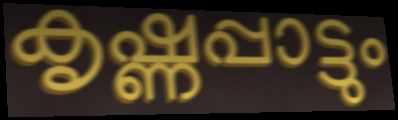
കൃഷ്ണപ്പാട്ടും